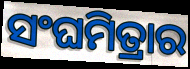
ସଂଘମିତ୍ରାର